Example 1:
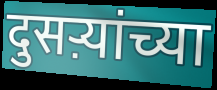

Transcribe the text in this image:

दुसऱ्‍यांच्या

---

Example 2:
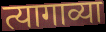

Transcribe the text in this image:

त्यागाव्या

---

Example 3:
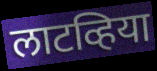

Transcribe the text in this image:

लाटव्हिया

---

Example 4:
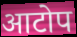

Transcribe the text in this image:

आटोप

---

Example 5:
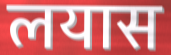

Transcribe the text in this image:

लयास